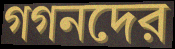
গগনদের